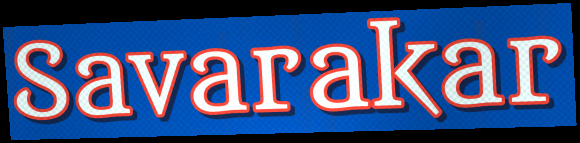
Savarakar